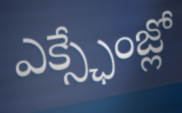
ఎక్స్ఛేంజ్లో